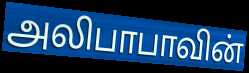
அலிபாபாவின்